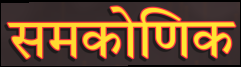
समकोणिक